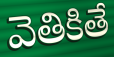
వెతికితే